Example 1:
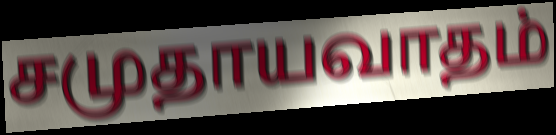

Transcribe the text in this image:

சமுதாயவாதம்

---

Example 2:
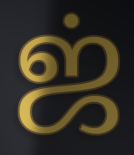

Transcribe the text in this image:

ஜ்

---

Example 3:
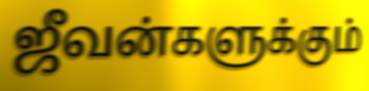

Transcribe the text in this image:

ஜீவன்களுக்கும்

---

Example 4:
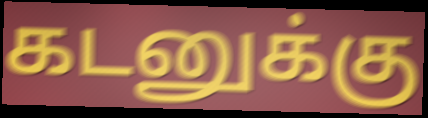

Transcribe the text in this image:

கடனுக்கு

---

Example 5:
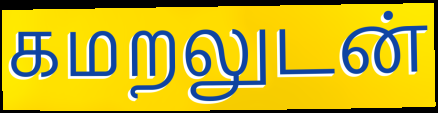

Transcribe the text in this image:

கமறலுடன்